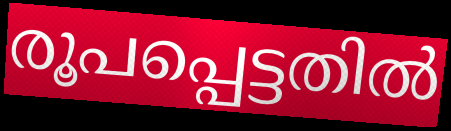
രൂപപ്പെട്ടതിൽ